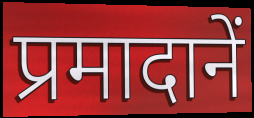
प्रमादानें